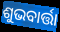
ଶୁଭବାର୍ତ୍ତା